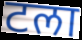
टला